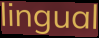
lingual